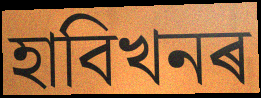
হাবিখনৰ